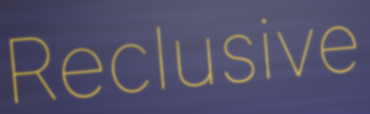
Reclusive